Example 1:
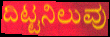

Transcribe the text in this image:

ದಿಟ್ಟನಿಲುವು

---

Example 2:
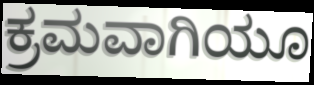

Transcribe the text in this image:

ಕ್ರಮವಾಗಿಯೂ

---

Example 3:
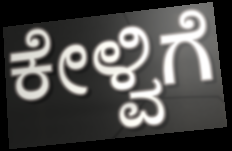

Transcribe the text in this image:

ಕೇಳ್ವಿಗೆ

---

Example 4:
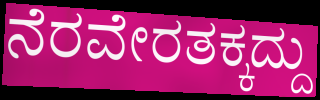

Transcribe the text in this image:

ನೆರವೇರತಕ್ಕದ್ದು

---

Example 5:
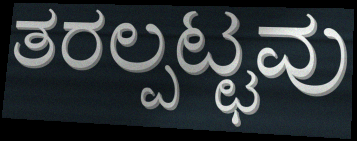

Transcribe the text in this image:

ತರಲ್ಪಟ್ಟವು